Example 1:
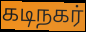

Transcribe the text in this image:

கடிநகர்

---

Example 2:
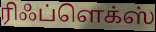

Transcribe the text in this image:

ரிஃப்ளெக்ஸ்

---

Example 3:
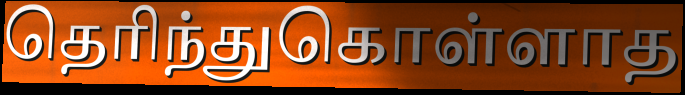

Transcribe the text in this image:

தெரிந்துகொள்ளாத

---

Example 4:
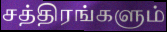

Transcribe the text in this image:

சத்திரங்களும்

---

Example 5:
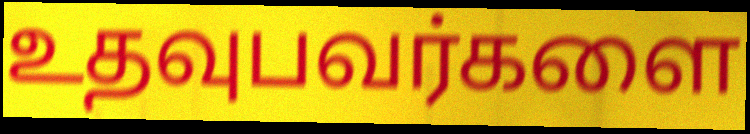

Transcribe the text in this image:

உதவுபவர்களை